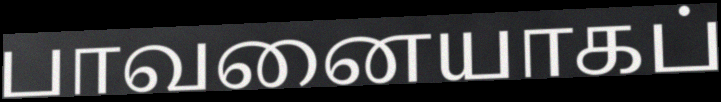
பாவனையாகப்